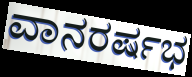
ವಾನರರ್ಷಭ